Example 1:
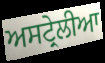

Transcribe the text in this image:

ਅਸਟ੍ਰੇਲੀਆ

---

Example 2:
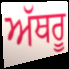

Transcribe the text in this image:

ਅੱਥਰੂ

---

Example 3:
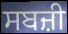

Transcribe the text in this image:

ਸਬਜ਼ੀ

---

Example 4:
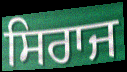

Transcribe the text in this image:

ਸਿਰਾਜ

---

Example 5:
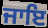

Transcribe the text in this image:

ਜਾਇ